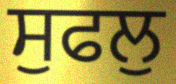
ਸੁਫਲੁ